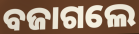
ବଜାଗଲେ